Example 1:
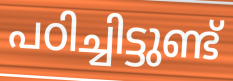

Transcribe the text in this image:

പഠിച്ചിട്ടുണ്ട്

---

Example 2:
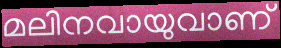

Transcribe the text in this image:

മലിനവായുവാണ്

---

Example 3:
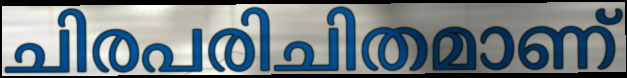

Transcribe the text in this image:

ചിരപരിചിതമാണ്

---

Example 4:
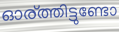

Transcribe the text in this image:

ഓര്ത്തിട്ടുണ്ടോ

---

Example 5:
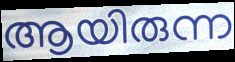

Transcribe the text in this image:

ആയിരുന്ന